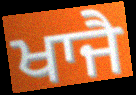
ਖਾਜੈ